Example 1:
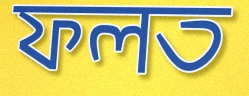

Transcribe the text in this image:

ফলত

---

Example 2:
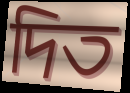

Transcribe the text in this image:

দিত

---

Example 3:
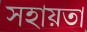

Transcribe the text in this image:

সহায়তা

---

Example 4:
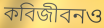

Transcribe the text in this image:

কবিজীবনও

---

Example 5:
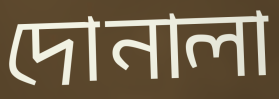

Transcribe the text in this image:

দোনালা